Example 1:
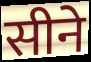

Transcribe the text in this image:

सीने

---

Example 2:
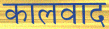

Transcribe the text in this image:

कालवाद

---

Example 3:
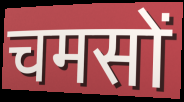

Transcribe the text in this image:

चमसों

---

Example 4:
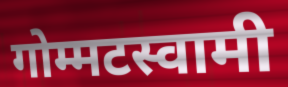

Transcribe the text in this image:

गोम्मटस्वामी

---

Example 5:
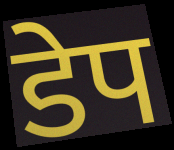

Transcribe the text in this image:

डेप